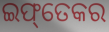
ଇଫ୍‌ତେକର